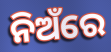
ନିଅଁରେ